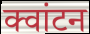
क्वांटन